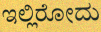
ಇಲ್ಲಿರೋದು